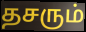
தசரும்